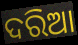
ଦରିଆ